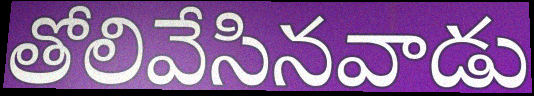
తోలివేసినవాడు